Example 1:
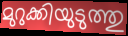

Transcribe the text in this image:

മുറുക്കിയുടുത്തു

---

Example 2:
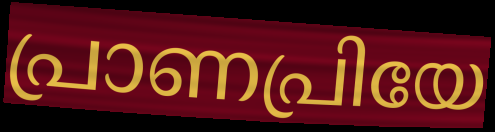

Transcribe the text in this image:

പ്രാണപ്രിയേ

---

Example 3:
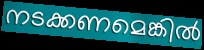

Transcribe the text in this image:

നടക്കണമെങ്കിൽ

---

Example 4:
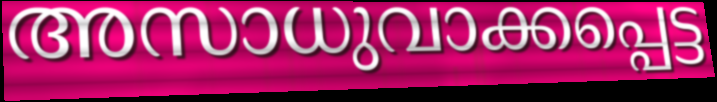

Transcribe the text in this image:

അസാധുവാക്കപ്പെട്ട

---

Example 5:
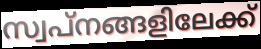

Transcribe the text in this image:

സ്വപ്നങ്ങളിലേക്ക്